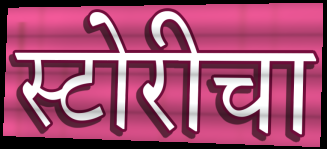
स्टोरीचा